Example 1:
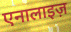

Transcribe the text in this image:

एनालाइज़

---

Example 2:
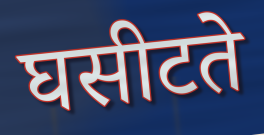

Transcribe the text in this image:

घसीटते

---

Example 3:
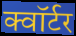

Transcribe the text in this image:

क्‍वॉर्टर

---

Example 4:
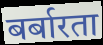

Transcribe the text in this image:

बर्बारता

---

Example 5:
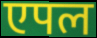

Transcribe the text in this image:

एपल